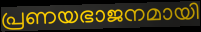
പ്രണയഭാജനമായി